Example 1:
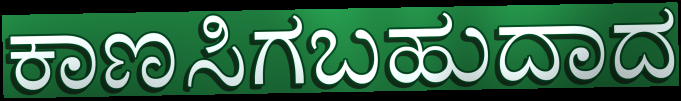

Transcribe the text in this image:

ಕಾಣಸಿಗಬಹುದಾದ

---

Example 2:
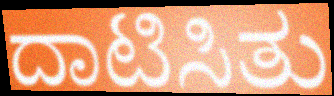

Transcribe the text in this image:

ದಾಟಿಸಿತು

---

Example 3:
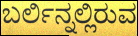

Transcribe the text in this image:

ಬರ್ಲಿನ್ನಲ್ಲಿರುವ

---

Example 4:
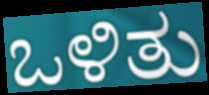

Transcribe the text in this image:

ಒಳಿತು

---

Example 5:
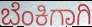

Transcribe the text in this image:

ಬೆಂಕಿಗಾಗಿ